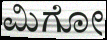
ಮಿಗೋ